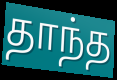
தாந்த